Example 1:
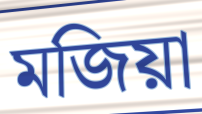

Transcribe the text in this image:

মজিয়া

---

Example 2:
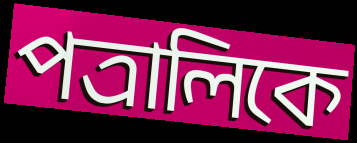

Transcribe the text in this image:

পত্রালিকে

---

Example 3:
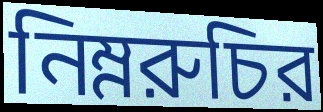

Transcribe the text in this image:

নিম্নরুচির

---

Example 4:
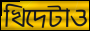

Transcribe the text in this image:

খিদেটাও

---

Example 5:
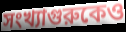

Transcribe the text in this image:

সংখ্যাগুরুকেও